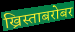
ख्रिस्ताबरोबर